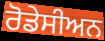
ਰੋਡੇਸੀਅਨ